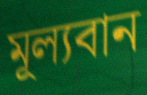
মূল্যবান